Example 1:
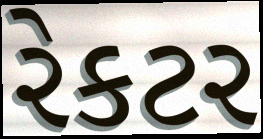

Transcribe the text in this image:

રેકટર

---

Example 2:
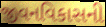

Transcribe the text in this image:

જીવનવિકાસની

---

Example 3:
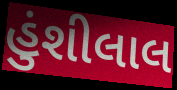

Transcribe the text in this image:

હુંશીલાલ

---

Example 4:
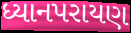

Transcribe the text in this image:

ધ્યાનપરાયણ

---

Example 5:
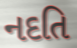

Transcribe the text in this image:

નદતિ